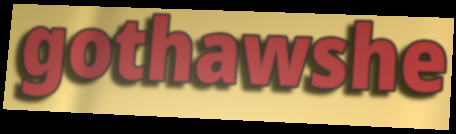
gothawshe